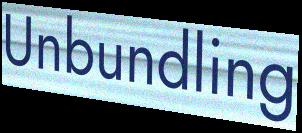
Unbundling